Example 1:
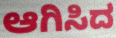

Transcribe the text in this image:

ಆಗಿಸಿದ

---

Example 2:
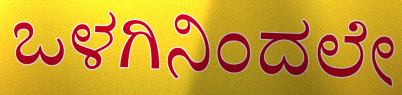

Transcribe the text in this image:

ಒಳಗಿನಿಂದಲೇ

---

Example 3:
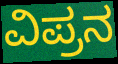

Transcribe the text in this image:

ವಿಪ್ರನ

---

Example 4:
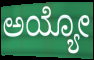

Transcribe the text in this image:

ಅಯ್ಯೋ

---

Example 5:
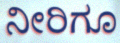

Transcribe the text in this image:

ನೀರಿಗೂ